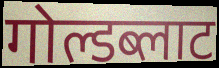
गोल्डब्लाट